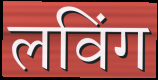
लविंग